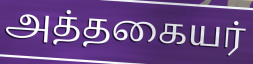
அத்தகையர்